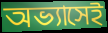
অভ্যাসেই